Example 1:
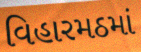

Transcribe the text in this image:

વિહારમઠમાં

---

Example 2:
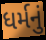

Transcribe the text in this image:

ધર્મનું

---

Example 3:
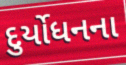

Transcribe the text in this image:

દુર્યોધનના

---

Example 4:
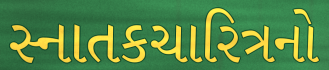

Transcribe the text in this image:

સ્નાતકચારિત્રનો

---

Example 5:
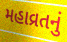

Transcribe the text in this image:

મહાવ્રતનું